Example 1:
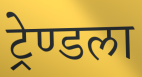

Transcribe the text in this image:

ट्रेण्डला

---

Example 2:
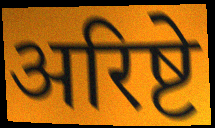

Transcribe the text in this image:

अरिष्टे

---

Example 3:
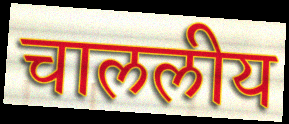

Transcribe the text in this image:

चाललीय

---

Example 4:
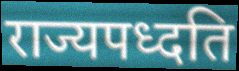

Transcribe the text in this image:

राज्यपध्दति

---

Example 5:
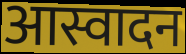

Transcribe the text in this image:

आस्वादन